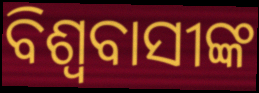
ବିଶ୍ଵବାସୀଙ୍କ